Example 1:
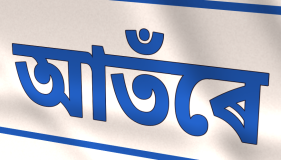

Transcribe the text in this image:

আতঁৰে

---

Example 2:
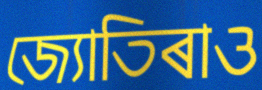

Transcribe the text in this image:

জ্যোতিৰাও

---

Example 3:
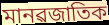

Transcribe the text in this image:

মানৱজাতিক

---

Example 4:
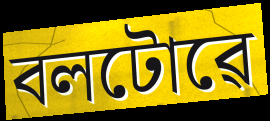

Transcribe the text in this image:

বলটোৱে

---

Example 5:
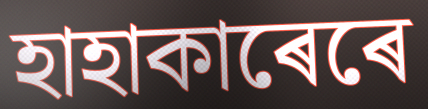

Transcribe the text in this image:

হাহাকাৰেৰে